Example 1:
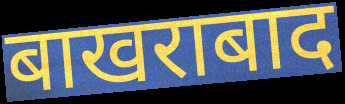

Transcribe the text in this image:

बाखराबाद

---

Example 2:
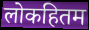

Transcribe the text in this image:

लोकहितम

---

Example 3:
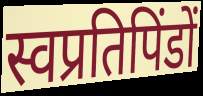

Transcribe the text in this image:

स्वप्रतिपिंडों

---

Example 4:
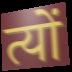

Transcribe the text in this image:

त्यों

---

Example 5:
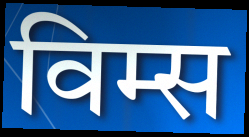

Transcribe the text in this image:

विम्स